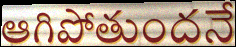
ఆగిపోతుందనే